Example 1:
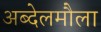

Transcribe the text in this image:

अब्देलमौला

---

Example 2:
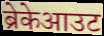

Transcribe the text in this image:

ब्रेकेआउट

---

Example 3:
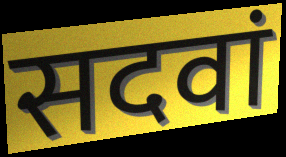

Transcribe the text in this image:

सदवां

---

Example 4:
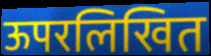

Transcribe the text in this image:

ऊपरलिखित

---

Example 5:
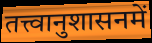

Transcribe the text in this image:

तत्त्वानुशासनमें